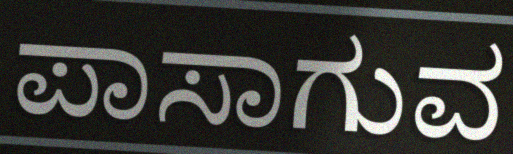
ಪಾಸಾಗುವ